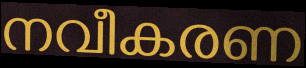
നവീകരണ